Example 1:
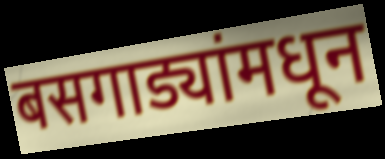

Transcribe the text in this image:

बसगाड्यांमधून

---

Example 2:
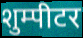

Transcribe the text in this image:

शुम्पीटर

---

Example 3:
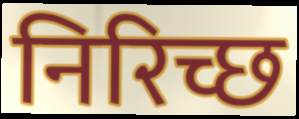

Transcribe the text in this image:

निरिच्छ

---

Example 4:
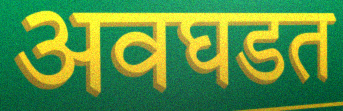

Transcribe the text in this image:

अवघडत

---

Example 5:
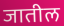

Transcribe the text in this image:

जातील